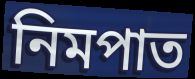
নিমপাত